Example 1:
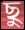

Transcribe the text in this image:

ছু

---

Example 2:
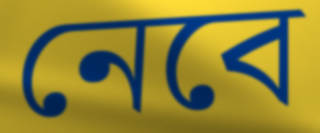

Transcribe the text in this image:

নেবে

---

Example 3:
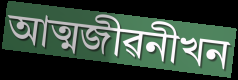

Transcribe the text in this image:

আত্মজীৱনীখন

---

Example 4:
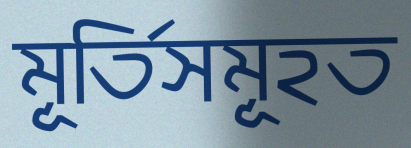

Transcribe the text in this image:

মূৰ্তিসমূহত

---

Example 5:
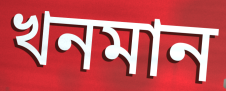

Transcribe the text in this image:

খনমান